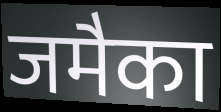
जमैका